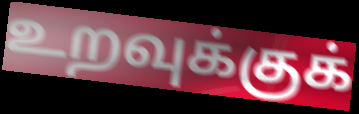
உறவுக்குக்